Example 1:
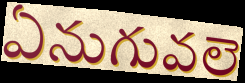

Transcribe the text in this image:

ఏనుగువలె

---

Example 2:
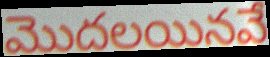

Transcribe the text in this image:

మొదలయినవే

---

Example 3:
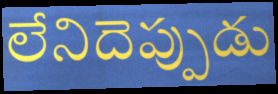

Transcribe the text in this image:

లేనిదెప్పుడు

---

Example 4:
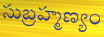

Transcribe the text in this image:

సుబ్రహ్మణ్యం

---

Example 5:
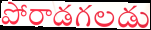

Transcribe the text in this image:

పోరాడగలడు